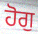
ਹੋਗੁ